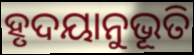
ହୃଦୟାନୁଭୂତି